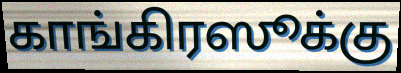
காங்கிரஸூக்கு